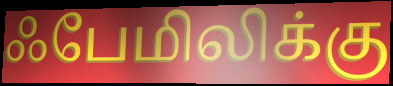
ஃபேமிலிக்கு